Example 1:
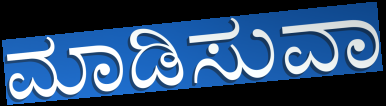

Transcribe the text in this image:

ಮಾಡಿಸುವಾ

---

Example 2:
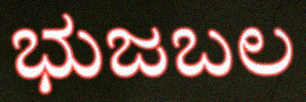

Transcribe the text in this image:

ಭುಜಬಲ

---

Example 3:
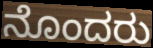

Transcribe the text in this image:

ನೊಂದರು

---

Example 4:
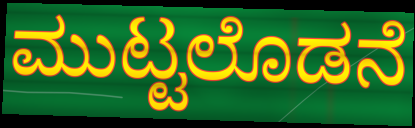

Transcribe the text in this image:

ಮುಟ್ಟಲೊಡನೆ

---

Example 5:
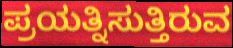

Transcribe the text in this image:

ಪ್ರಯತ್ನಿಸುತ್ತಿರುವ